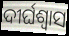
ଦୀର୍ଘଶ୍ବାସ